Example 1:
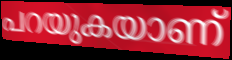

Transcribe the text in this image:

പറയുകയാണ്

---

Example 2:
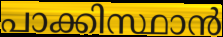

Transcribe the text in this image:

പാക്കിസ്ഥാൻ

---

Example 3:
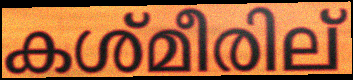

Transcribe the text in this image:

കശ്മീരില്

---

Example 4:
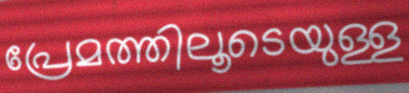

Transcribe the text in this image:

പ്രേമത്തിലൂടെയുള്ള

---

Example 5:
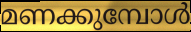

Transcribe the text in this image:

മണക്കുമ്പോൾ